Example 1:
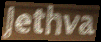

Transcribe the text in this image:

Jethva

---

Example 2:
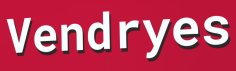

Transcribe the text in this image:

Vendryes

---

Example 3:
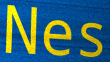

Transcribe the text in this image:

Nes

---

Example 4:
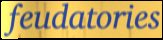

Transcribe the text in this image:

feudatories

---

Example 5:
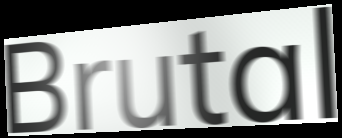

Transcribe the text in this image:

Brutal